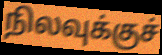
நிலவுக்குச்